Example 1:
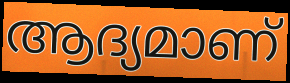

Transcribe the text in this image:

ആദ്യമാണ്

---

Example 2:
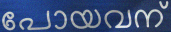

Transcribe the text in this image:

പോയവന്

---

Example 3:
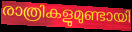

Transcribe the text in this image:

രാത്രികളുമുണ്ടായി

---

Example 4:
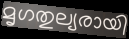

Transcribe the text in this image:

മൃഗതുല്യരായി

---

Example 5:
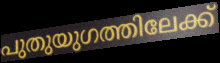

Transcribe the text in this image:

പുതുയുഗത്തിലേക്ക്